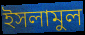
ইসলামুল